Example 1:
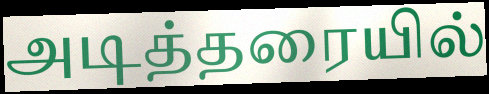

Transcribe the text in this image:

அடித்தரையில்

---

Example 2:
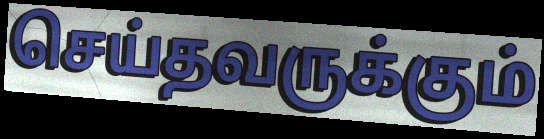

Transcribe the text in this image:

செய்தவருக்கும்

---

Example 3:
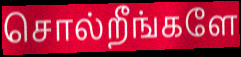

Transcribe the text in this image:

சொல்றீங்களே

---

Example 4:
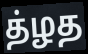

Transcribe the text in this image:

த்ழத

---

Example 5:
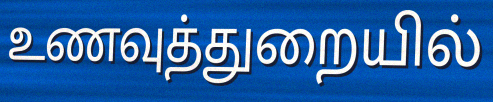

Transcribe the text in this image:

உணவுத்துறையில்